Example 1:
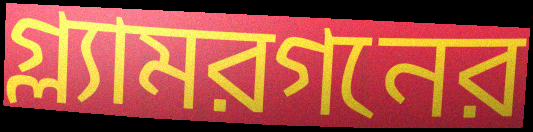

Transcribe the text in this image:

গ্ল্যামরগনের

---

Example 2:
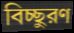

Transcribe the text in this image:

বিচ্ছুরণ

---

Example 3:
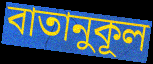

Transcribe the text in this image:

বাতানুকূল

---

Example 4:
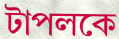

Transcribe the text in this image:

টাপলকে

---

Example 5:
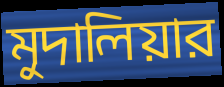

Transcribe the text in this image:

মুদালিয়ার